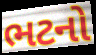
ભટનો